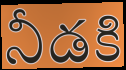
నీడకి